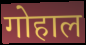
गोहाल